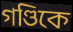
গণ্ডিকে